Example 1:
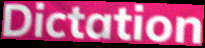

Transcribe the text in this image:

Dictation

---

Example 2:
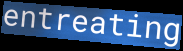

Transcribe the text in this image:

entreating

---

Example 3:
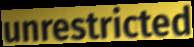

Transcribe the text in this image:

unrestricted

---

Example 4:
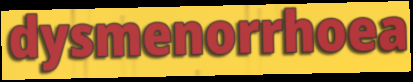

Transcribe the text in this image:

dysmenorrhoea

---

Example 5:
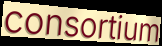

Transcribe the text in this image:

consortium